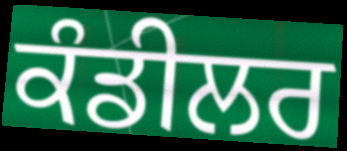
ਕੰਡੀਲਰ